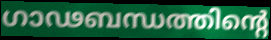
ഗാഢബന്ധത്തിന്റെ